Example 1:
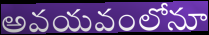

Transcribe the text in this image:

అవయవంలోనూ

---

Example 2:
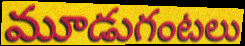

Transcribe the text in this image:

మూడుగంటలు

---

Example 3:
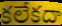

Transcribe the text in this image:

కలేకదా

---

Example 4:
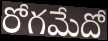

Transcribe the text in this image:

రోగమేదో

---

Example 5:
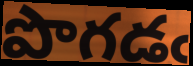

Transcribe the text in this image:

పొగడఁ